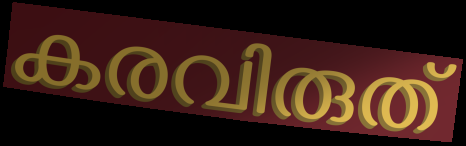
കരവിരുത്